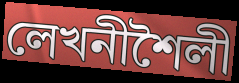
লেখনীশৈলী